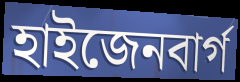
হাইজেনবাৰ্গ